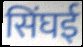
सिंघई